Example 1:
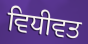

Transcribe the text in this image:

ਵਿਧੀਵਤ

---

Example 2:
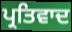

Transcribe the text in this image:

ਪ੍ਰਤਿਵਾਦ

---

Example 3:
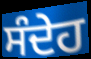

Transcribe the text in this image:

ਸੰਦੇਹ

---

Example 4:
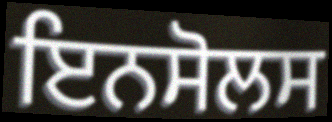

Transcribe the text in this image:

ਇਨਸੋਲਸ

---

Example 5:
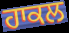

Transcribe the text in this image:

ਹਾਕਲ